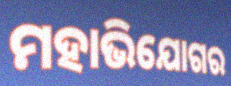
ମହାଭିଯୋଗର